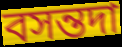
বসন্তদা